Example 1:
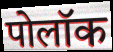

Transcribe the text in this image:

पोलॉक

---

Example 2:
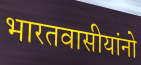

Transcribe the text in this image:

भारतवासीयांनो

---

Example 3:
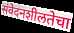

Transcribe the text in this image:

संवेदनशीलतेचा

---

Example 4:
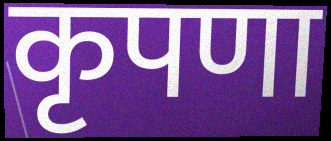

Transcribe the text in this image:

कृपणा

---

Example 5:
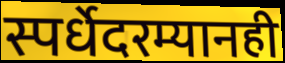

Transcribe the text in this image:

स्पर्धेदरम्यानही